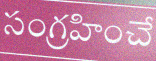
సంగ్రహించే